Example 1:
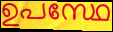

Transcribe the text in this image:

ഉപസ്ഥേ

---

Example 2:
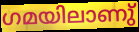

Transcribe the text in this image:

ഗമയിലാണു്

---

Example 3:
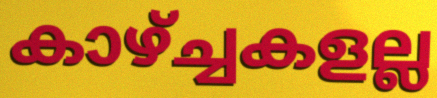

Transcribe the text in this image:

കാഴ്ച്ചകളല്ല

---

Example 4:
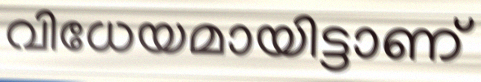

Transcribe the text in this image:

വിധേയമായിട്ടാണ്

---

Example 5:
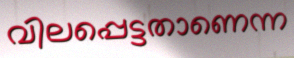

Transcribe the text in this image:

വിലപ്പെട്ടതാണെന്ന